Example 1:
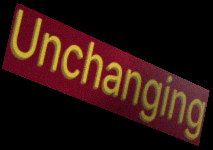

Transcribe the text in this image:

Unchanging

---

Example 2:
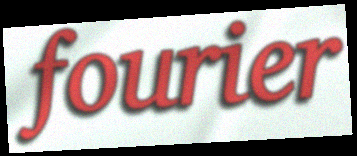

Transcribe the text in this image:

fourier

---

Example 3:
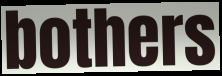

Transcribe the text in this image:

bothers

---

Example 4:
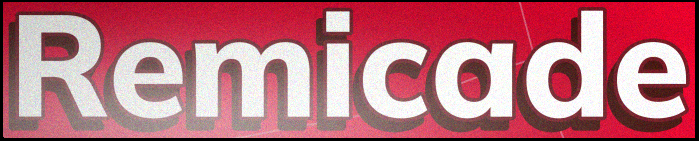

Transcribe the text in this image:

Remicade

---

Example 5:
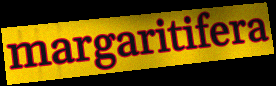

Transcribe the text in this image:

margaritifera